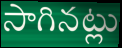
సాగినట్లు